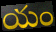
యం